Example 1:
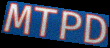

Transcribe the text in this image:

MTPD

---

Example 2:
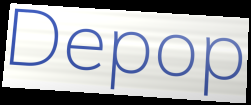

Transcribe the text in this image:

Depop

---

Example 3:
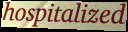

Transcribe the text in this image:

hospitalized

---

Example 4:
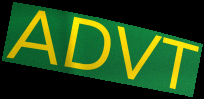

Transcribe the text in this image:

ADVT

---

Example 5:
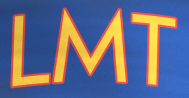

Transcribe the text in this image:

LMT